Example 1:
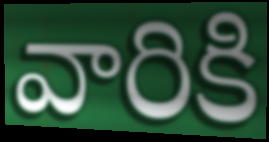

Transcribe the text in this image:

వారికి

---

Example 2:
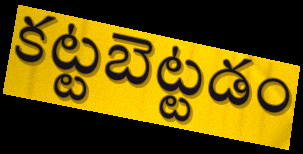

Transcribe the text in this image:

కట్టబెట్టడం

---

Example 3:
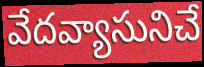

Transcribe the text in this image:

వేదవ్యాసునిచే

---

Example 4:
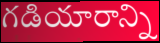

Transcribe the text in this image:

గడియారాన్ని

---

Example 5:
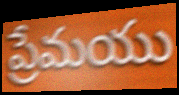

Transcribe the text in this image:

ప్రేమయు